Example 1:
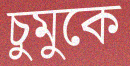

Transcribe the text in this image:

চুমুকে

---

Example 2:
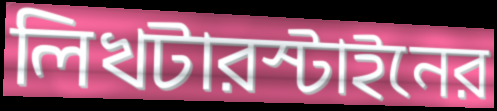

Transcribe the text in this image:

লিখটারস্টাইনের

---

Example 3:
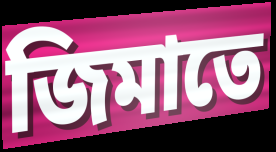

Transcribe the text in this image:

জিমাতে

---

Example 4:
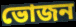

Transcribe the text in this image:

ভোজন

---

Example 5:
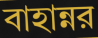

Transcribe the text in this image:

বাহান্নর